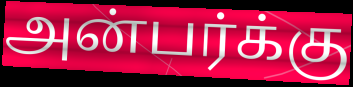
அன்பர்க்கு